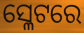
ସ୍ଳେଟରେ